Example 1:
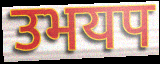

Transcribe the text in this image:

उभयप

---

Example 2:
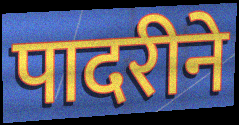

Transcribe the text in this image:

पादरीने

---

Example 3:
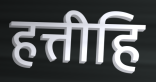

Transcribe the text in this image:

हत्तीहि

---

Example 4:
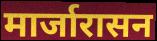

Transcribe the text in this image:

मार्जारासन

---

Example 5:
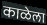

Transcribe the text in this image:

काळेला